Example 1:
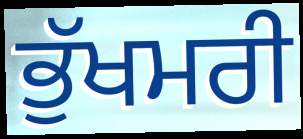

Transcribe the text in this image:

ਭੁੱਖਮਰੀ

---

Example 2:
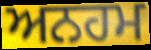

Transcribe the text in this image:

ਅਨਹਮ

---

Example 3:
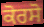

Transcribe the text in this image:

ਕੋਰਸੋ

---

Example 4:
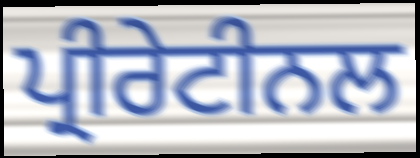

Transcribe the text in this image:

ਪ੍ਰੀਰੇਟੀਨਲ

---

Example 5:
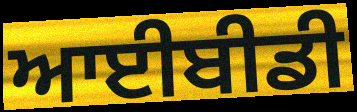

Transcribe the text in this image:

ਆਈਬੀਡੀ